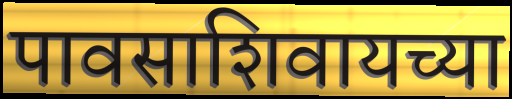
पावसाशिवायच्या